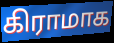
கிராமாக